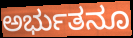
ಅರ್ಭುತನೂ